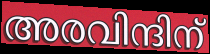
അരവിന്ദിന്